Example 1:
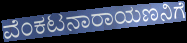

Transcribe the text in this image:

ವೆಂಕಟನಾರಾಯಣನಿಗೆ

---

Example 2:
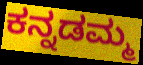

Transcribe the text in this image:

ಕನ್ನಡಮ್ಮ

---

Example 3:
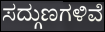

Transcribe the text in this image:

ಸದ್ಗುಣಗಳಿವೆ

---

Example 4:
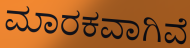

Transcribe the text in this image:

ಮಾರಕವಾಗಿವೆ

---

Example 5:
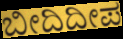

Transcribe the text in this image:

ಬೀದಿದೀಪ